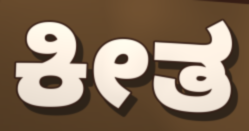
ಕೀತ